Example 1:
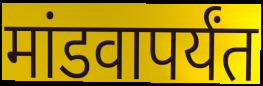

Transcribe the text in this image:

मांडवापर्यंत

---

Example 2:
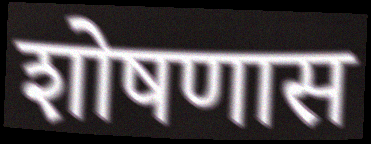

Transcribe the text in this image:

शोषणास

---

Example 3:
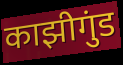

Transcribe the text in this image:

काझीगुंड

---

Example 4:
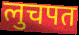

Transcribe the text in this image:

लुचपत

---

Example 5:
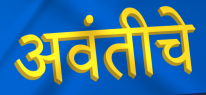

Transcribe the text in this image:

अवंतीचे